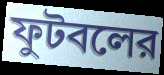
ফুটবলের